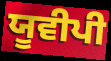
ਯੂਵੀਪੀ